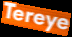
Tereye